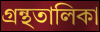
গ্ৰন্থতালিকা